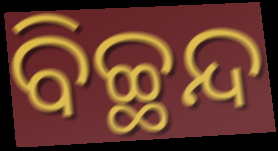
ବିଚ୍ଛନ୍ଦ